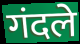
गंदले